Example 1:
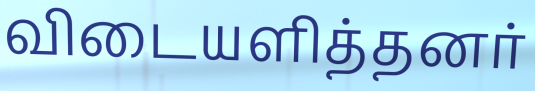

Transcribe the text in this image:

விடையளித்தனர்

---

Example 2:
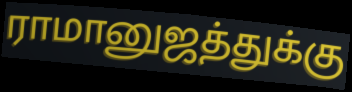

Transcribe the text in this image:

ராமானுஜத்துக்கு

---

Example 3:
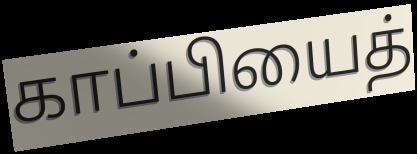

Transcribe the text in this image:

காப்பியைத்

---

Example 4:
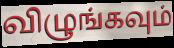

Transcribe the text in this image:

விழுங்கவும்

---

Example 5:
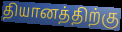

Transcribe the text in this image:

தியானத்திற்கு